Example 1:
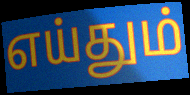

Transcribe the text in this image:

எய்தும்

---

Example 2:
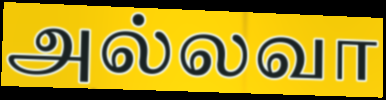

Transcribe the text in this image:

அல்லவா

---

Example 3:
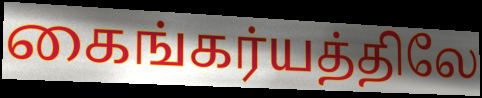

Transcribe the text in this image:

கைங்கர்யத்திலே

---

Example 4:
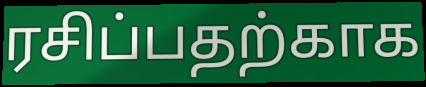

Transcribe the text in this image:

ரசிப்பதற்காக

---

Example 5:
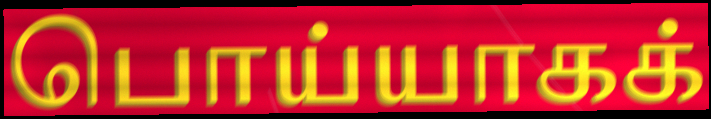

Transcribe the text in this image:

பொய்யாகக்